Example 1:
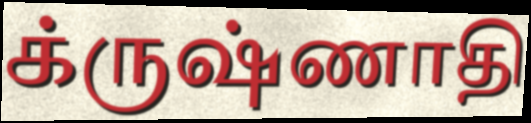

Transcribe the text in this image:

க்ருஷ்ணாதி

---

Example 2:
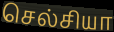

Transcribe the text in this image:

செல்சியா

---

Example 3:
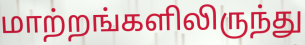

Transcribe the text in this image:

மாற்றங்களிலிருந்து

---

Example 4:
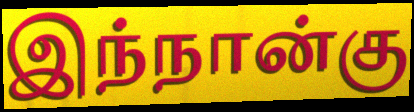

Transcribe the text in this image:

இந்நான்கு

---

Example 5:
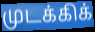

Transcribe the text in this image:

முடக்கிக்